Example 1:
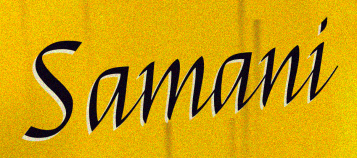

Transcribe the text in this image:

Samani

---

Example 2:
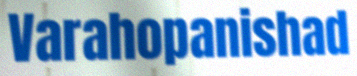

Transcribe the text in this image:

Varahopanishad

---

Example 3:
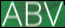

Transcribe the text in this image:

ABV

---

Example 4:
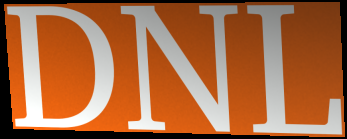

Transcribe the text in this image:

DNL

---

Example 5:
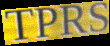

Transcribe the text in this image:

TPRS